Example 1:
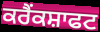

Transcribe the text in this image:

ਕਰੈਂਕਸ਼ਾਫਟ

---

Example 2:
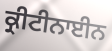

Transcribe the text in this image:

ਕ੍ਰੀਟੀਨਾਈਨ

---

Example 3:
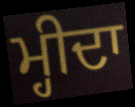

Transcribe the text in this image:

ਮ੍ਹੀਦਾ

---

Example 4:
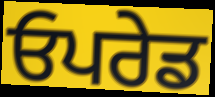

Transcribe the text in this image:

ਓਪਰੇਡ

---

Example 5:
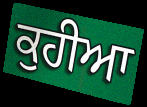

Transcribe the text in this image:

ਕੁਹੀਆ